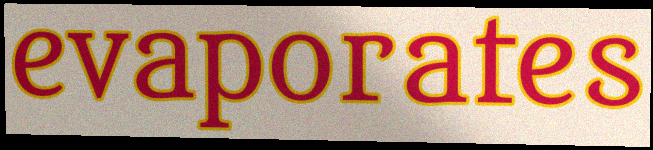
evaporates